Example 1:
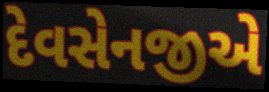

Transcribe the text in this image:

દેવસેનજીએ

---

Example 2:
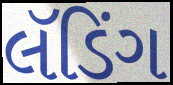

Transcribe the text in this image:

લૅડિંગ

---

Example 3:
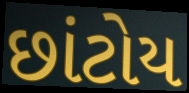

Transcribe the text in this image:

છાંટોય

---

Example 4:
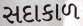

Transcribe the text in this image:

સદાકાળ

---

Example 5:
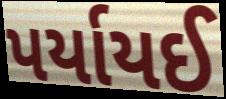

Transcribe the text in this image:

પર્યાયઈ